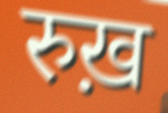
रुख़